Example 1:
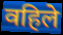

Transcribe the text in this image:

वहिले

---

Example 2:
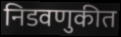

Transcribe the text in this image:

निडवणुकीत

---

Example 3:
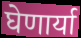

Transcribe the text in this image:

घेणार्या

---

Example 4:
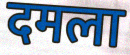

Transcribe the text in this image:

दमला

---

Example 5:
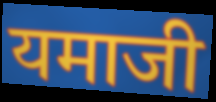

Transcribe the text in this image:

यमाजी